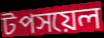
টপসয়েল